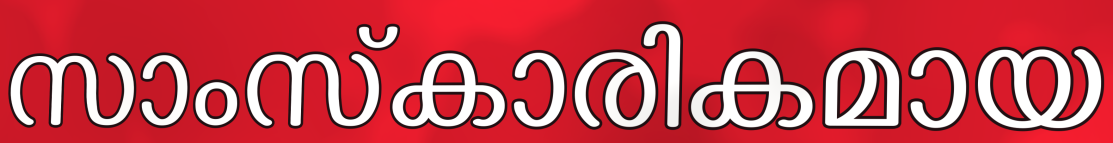
സാംസ്‌കാരികമായ